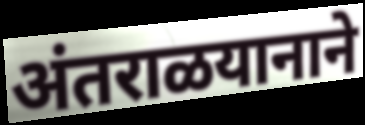
अंतराळयानाने